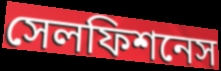
সেলফিশনেস